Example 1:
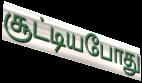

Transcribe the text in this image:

சூட்டியபோது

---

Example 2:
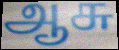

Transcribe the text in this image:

ஆசு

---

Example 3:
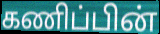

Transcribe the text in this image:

கணிப்பின்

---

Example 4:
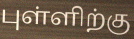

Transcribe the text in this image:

புள்ளிற்கு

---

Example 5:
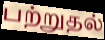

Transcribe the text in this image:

பற்றுதல்